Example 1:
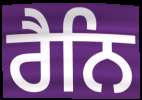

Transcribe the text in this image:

ਰੈਨਿ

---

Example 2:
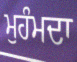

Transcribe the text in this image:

ਮੁਹੰਮਦਾ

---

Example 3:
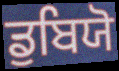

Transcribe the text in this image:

ਡੁਬਿਯੋ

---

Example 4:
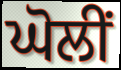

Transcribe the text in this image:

ਘੋਲੀਂ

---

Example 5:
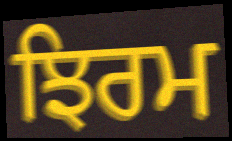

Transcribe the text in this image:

ਝਿਰਮ